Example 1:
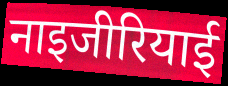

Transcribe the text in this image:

नाइजीरियाई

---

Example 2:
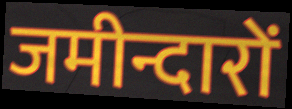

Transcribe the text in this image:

जमीन्दारों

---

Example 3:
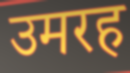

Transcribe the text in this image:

उमरह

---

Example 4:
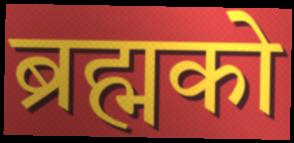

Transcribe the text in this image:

ब्रह्मको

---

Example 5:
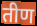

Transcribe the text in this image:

तीण